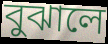
বুঝালে